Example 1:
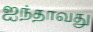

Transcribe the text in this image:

ஐந்தாவது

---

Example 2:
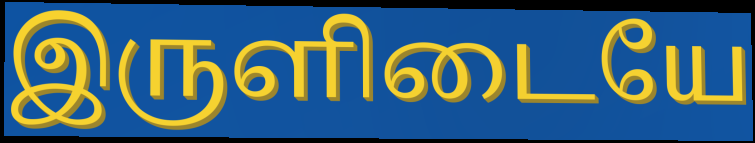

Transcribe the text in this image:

இருளிடையே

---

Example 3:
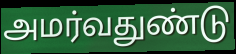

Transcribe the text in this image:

அமர்வதுண்டு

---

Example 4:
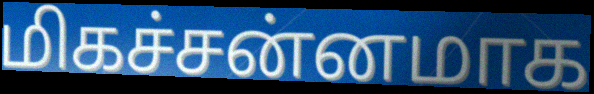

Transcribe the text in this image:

மிகச்சன்னமாக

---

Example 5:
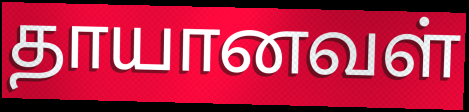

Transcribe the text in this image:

தாயானவள்